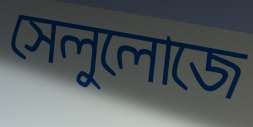
সেলুলোজে